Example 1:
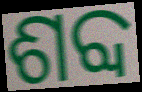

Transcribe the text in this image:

ଶବ୍ଦ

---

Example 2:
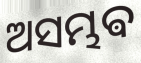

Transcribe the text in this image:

ଅସମ୍ଭଵ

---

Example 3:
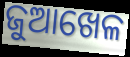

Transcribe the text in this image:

ଜୁଆଖେଳ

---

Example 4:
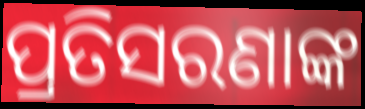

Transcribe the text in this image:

ପ୍ରତିସରଣାଙ୍କ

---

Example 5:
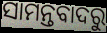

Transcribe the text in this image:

ସାମନ୍ତବାଦରୁ